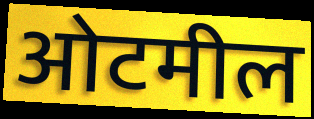
ओटमील